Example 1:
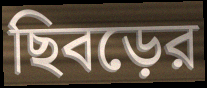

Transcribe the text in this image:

ছিবড়ের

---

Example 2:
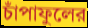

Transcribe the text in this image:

চাঁপাফুলের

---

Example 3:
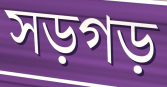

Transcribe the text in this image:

সড়গড়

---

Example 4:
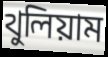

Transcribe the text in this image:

থুলিয়াম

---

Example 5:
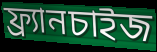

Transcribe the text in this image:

ফ্র্যানচাইজ